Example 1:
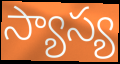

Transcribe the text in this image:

స్యాస్య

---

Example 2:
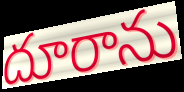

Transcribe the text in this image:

దూరాను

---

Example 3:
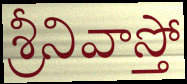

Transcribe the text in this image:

శ్రీనివాస్తో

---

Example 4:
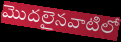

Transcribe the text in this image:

మొదలైనవాటిలో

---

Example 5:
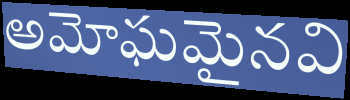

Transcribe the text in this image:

అమోఘమైనవి